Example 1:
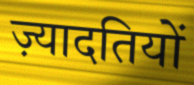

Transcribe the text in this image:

ज़्यादतियों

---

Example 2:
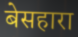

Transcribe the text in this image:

बेसहारा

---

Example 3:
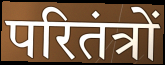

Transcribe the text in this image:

परितंत्रों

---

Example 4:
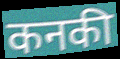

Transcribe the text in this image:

कनकी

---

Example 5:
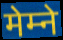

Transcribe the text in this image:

मेम्ने